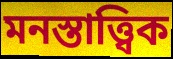
মনস্তাত্ত্বিক